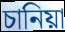
চানিয়া